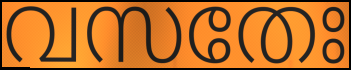
വസതേഃ